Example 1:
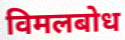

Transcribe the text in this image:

विमलबोध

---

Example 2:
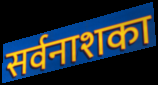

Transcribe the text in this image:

सर्वनाशका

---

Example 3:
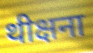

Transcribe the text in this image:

थीक्षना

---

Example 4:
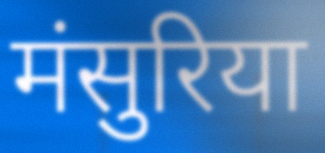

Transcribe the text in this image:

मंसुरिया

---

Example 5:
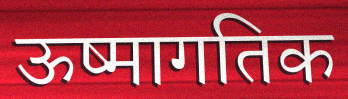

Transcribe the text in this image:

ऊष्मागतिक